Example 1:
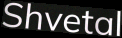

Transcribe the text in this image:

Shvetal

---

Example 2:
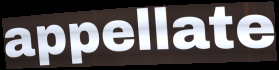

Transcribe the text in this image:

appellate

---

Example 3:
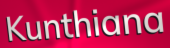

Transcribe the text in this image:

Kunthiana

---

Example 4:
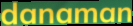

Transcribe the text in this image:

danaman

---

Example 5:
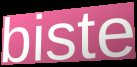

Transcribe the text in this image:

biste